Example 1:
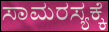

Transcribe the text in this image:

ಸಾಮರಸ್ಯಕ್ಕೆ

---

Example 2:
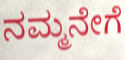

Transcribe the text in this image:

ನಮ್ಮನೇಗೆ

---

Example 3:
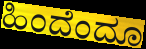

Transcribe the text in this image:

ಹಿಂದೆಂದೂ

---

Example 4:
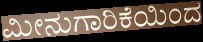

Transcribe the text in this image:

ಮೀನುಗಾರಿಕೆಯಿಂದ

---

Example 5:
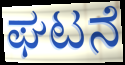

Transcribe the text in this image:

ಘಟನೆ